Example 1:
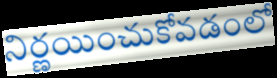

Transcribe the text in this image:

నిర్ణయించుకోవడంలో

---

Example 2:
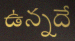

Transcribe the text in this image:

ఉన్నదే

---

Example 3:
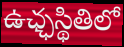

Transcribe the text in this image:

ఉఛ్ఛస్థితిలో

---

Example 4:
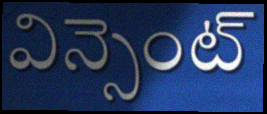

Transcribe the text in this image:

విన్సెంట్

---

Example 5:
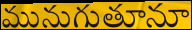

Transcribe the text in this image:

మునుగుతూనూ